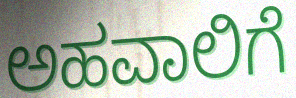
ಅಹವಾಲಿಗೆ